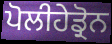
ਪੋਲੀਹੇਡ੍ਰੋਨ